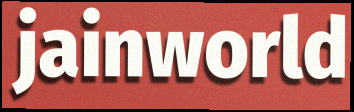
jainworld